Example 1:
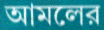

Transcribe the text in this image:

আমলের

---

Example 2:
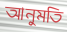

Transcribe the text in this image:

আনুমতি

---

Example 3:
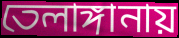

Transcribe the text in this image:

তেলাঙ্গানায়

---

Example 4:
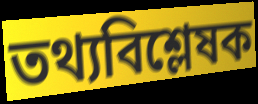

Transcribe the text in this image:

তথ্যবিশ্লেষক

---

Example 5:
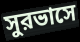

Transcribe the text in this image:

সুরভাসে